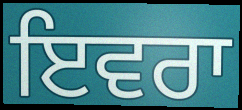
ਇਵਰਾ